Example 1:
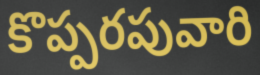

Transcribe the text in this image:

కొప్పరపువారి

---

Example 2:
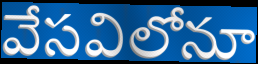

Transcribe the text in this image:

వేసవిలోనూ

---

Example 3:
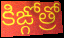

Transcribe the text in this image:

కిఙ్గోత్రో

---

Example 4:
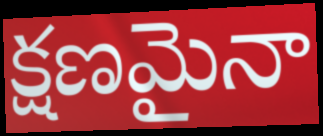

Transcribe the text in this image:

క్షణమైనా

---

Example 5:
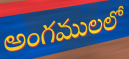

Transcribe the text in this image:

అంగములలో